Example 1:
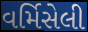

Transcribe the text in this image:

વર્મિસેલી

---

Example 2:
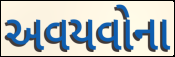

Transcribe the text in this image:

અવયવોના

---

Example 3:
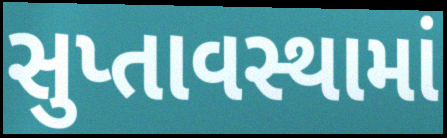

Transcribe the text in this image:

સુપ્તાવસ્થામાં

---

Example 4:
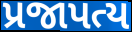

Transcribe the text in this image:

પ્રજાપત્ય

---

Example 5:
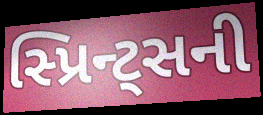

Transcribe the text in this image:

સ્પ્રિન્ટ્સની